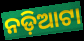
ନଡ଼ିଆଟା